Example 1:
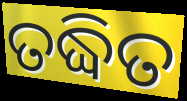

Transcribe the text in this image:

ତଦ୍ଧିତ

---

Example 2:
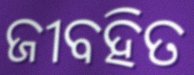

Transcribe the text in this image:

ଜୀବହିତ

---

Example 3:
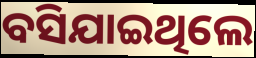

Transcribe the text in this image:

ବସିଯାଇଥିଲେ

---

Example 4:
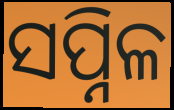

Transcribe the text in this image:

ସପ୍ନିଳ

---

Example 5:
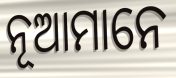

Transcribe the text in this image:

ନୂଆମାନେ